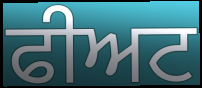
ਫੀਅਟ